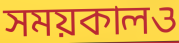
সময়কালও